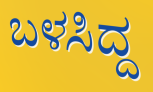
ಬಳಸಿದ್ದ